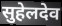
सुहेलदेव